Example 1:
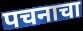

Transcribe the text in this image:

पचनाचा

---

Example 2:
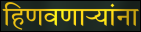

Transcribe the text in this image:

हिणवणाऱ्यांना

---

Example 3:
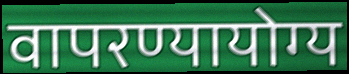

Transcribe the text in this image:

वापरण्यायोग्य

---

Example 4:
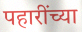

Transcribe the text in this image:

पहारींच्या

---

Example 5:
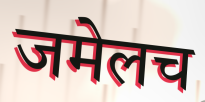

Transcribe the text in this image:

जमेलच